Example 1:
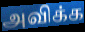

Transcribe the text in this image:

அவிக்க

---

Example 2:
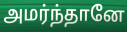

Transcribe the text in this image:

அமர்ந்தானே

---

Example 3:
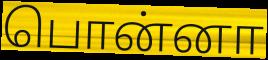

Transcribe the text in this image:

பொன்னா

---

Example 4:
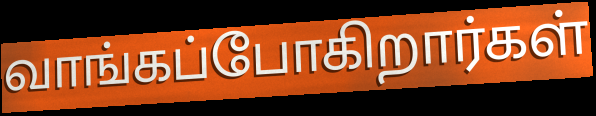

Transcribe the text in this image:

வாங்கப்போகிறார்கள்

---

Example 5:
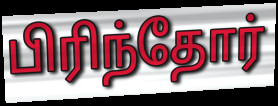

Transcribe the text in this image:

பிரிந்தோர்